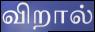
விறால்